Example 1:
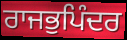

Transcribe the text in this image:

ਰਾਜਭੁਪਿੰਦਰ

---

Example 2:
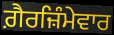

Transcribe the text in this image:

ਗ਼ੈਰਜ਼ਿੰਮੇਵਾਰ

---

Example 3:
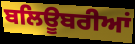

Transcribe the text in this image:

ਬਲਿਊਬਰੀਆਂ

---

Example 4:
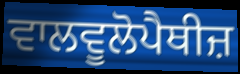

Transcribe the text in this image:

ਵਾਲਵੂਲੋਪੈਥੀਜ਼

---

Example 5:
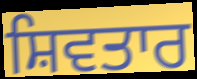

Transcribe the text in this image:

ਸ਼ਿਵਤਾਰ